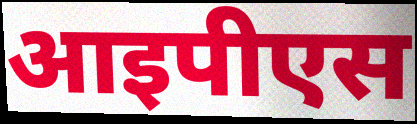
आइपीएस